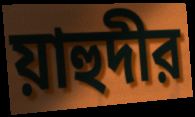
য়াহুদীর